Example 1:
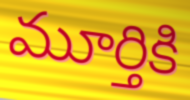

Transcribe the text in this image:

మూర్తికి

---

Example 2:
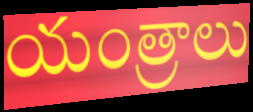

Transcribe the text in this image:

యంత్రాలు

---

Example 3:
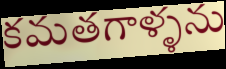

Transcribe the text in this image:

కమతగాళ్ళను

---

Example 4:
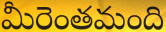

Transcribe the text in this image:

మీరెంతమంది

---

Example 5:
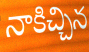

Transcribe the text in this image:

నాకిచ్చిన